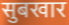
सुबखार